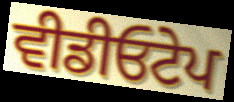
ਵੀਡੀਓਟੇਪ